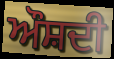
ਔਸ਼ਦੀ